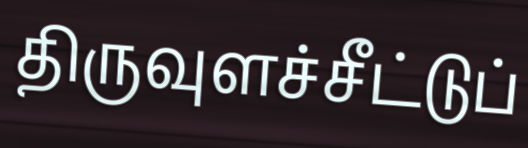
திருவுளச்சீட்டுப்